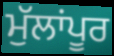
ਮੁੱਲਾਂਪੂਰ